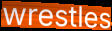
wrestles